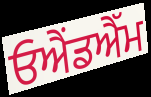
ਓਐਂਡਐੱਮ